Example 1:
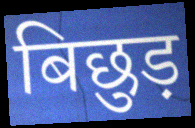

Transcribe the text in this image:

बिछुड़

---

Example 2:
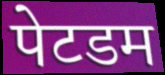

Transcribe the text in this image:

पेटडम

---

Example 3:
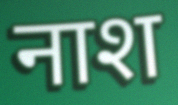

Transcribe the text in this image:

नाश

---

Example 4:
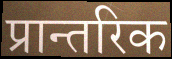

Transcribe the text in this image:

प्रान्तरिक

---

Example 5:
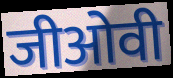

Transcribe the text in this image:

जीओवी